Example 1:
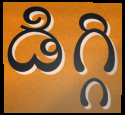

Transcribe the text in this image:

డిగ్గి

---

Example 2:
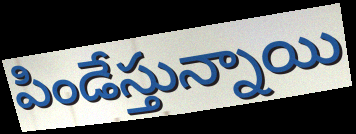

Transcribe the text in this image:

పిండేస్తున్నాయి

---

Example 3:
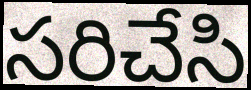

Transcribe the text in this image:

సరిచేసి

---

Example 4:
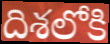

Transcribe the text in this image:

దిశలోకి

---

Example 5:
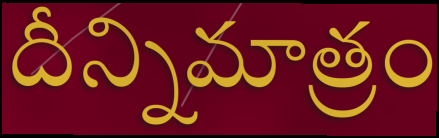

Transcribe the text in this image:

దీన్నిమాత్రం